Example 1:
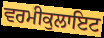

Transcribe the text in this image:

ਵਰਮੀਕੁਲਾਇਟ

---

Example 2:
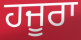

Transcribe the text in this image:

ਹਜੂਰਾ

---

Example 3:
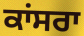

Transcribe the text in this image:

ਕਾਂਸਰਾ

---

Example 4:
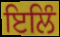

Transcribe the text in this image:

ਇਲਿੰ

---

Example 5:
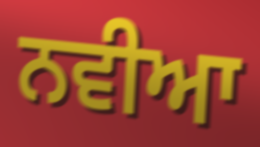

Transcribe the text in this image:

ਨਵੀਆ